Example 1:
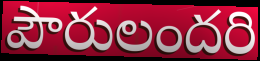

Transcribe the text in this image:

పౌరులందరి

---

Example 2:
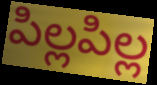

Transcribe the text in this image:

పిల్లపిల్ల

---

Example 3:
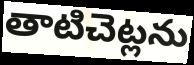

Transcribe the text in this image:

తాటిచెట్లను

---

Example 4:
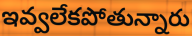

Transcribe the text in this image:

ఇవ్వలేకపోతున్నారు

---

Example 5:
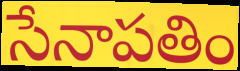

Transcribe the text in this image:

సేనాపతిం